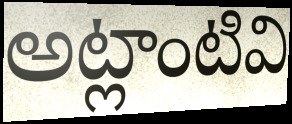
అట్లాంటివి